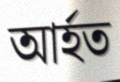
আর্হত